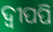
ଦ୍ବୀପପି